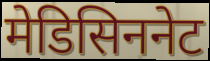
मेडिसिननेट